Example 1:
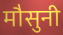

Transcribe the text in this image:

मौसुनी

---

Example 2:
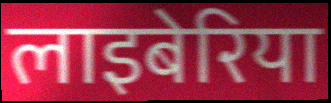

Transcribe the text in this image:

लाइबेरिया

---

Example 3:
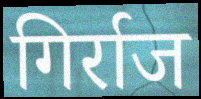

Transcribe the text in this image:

गिर्राज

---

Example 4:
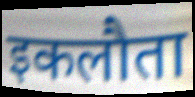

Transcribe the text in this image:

इकलौता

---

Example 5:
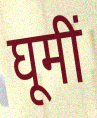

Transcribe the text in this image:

घूमीं